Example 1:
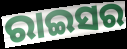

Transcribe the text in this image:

ରାଇସର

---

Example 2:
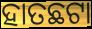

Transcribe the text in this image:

ହାତଛଟା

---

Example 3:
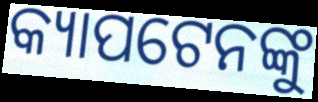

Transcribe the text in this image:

କ୍ୟାପଟେନଙ୍କୁ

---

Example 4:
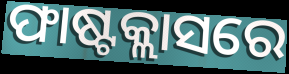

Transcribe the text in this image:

ଫାଷ୍ଟକ୍ଲାସରେ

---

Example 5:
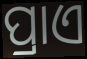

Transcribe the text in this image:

ପ୍ରାଏ